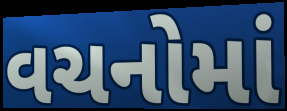
વચનોમાં